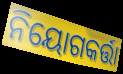
ନିୟୋଗକର୍ତ୍ତା